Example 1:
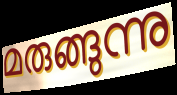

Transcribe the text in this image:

മരുങ്ങുന്നു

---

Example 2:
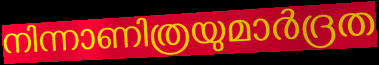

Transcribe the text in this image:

നിന്നാണിത്രയുമാർദ്രത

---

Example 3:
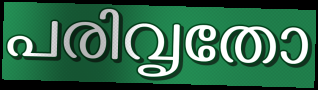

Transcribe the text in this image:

പരിവൃതോ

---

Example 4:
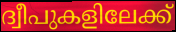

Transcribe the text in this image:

ദ്വീപുകളിലേക്ക്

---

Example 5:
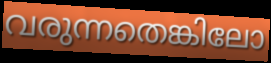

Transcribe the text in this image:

വരുന്നതെങ്കിലോ